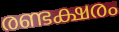
രണ്ടക്ഷരം